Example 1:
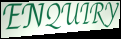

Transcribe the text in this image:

ENQUIRY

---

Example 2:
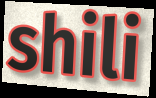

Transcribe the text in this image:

shili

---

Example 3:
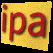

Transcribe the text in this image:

ipa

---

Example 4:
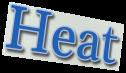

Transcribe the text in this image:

Heat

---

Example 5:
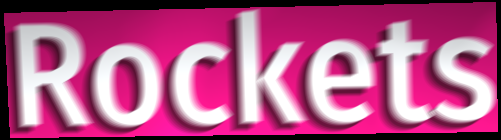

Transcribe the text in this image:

Rockets